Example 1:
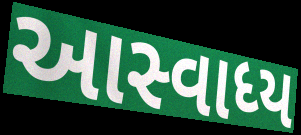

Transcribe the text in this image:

આસ્વાધ્ય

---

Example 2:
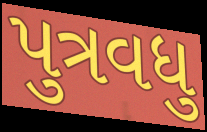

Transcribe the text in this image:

પુત્રવધુ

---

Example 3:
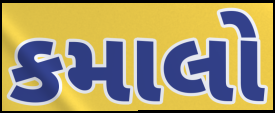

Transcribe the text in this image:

કમાલો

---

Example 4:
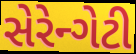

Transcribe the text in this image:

સેરેન્ગેટી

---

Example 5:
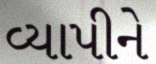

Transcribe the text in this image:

વ્યાપીને